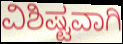
ವಿಶಿಷ್ಟವಾಗಿ